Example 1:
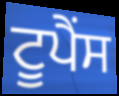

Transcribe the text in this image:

ਟੂਪੈਂਸ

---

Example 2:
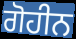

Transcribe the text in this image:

ਗੋਹੀਨ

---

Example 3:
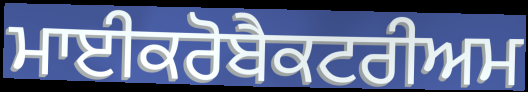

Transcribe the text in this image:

ਮਾਈਕਰੋਬੈਕਟਰੀਅਮ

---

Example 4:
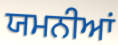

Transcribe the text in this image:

ਯਮਨੀਆਂ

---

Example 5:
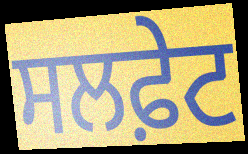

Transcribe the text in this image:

ਸਲਫ਼ੇਟ